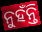
ନୁହଁନ୍ତି